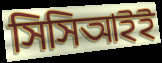
সিসিআইই